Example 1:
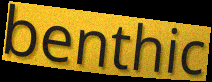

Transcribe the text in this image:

benthic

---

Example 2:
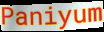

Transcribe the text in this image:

Paniyum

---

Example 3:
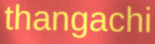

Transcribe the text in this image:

thangachi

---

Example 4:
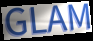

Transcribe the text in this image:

GLAM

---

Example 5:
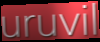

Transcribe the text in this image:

uruvil